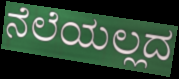
ನೆಲೆಯಲ್ಲದ